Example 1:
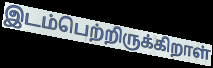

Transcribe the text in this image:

இடம்பெற்றிருக்கிறாள்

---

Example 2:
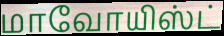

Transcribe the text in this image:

மாவோயிஸ்ட்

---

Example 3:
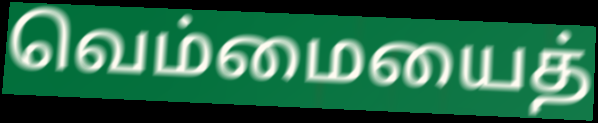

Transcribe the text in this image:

வெம்மையைத்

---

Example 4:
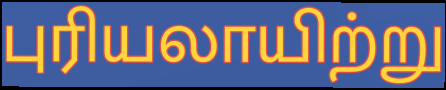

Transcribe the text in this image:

புரியலாயிற்று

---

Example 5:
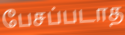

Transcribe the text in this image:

பேசப்படாத